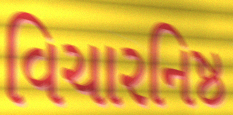
વિચારનિષ્ઠ